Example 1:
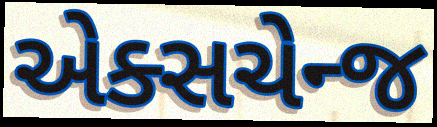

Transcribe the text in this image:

એક્સચેન્જ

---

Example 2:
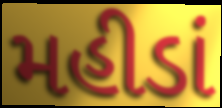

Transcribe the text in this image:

મહીડાં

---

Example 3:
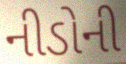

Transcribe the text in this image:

નીડોની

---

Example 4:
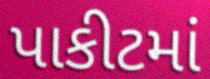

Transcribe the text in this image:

પાકીટમાં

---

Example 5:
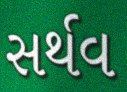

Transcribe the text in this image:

સર્થવ